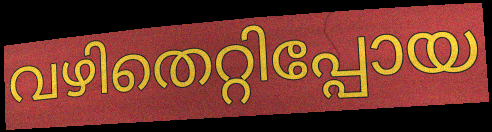
വഴിതെറ്റിപ്പോയ